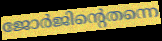
ജോർജിന്റെതന്നെ